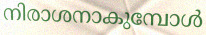
നിരാശനാകുമ്പോൾ